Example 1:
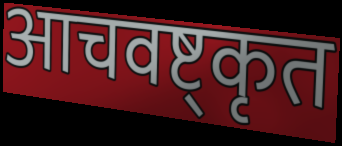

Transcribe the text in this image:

आचवष्ट्कृत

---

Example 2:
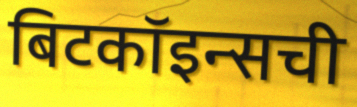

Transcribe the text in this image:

बिटकॉइन्सची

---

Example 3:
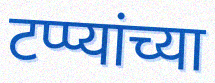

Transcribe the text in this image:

टप्प्यांच्या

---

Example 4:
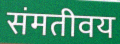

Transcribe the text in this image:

संमतीवय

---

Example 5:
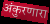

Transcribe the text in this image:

अंकुरणारा